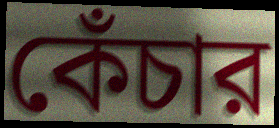
কেঁচার